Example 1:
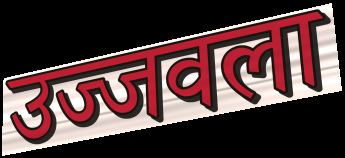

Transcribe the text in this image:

उज्जवला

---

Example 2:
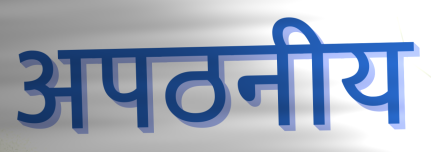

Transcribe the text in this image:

अपठनीय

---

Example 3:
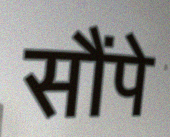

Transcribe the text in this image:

सौंपे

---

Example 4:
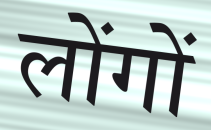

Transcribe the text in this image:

लोंगों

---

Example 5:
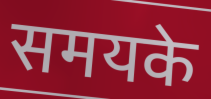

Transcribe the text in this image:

समयके